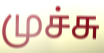
முச்சு